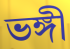
ভঙ্গী